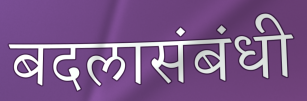
बदलासंबंधी